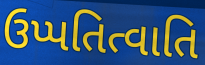
ઉપ્પતિત્વાતિ